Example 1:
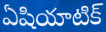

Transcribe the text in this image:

ఏషియాటిక్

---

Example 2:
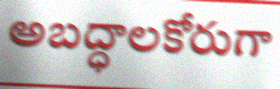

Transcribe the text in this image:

అబద్ధాలకోరుగా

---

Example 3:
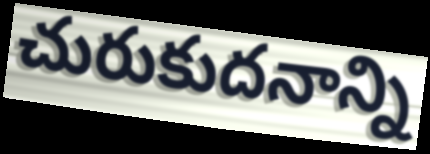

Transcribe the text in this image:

చురుకుదనాన్ని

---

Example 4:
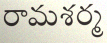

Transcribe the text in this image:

రామశర్మ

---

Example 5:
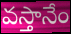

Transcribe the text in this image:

వస్తానేం